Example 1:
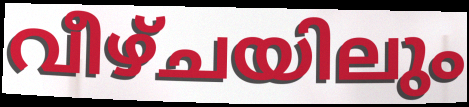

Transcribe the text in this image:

വീഴ്ചയിലും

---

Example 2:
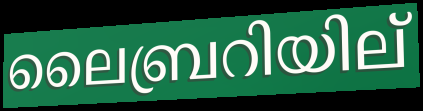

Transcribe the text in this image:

ലൈബ്രറിയില്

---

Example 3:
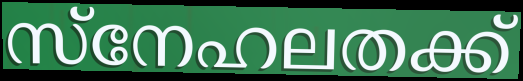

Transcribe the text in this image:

സ്നേഹലതക്ക്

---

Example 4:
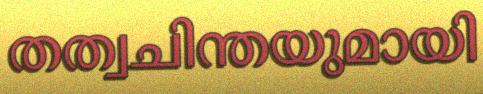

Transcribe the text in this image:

തത്വചിന്തയുമായി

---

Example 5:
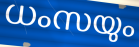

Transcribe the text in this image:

ധംസയും